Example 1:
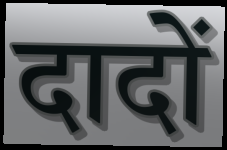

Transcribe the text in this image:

दादों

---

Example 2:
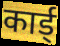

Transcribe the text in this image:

कार्ड्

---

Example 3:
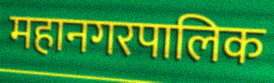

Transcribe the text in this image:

महानगरपालिक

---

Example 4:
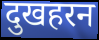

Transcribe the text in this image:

दुखहरन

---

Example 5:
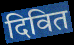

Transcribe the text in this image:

दिवित